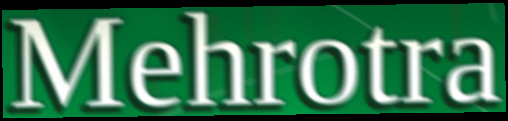
Mehrotra